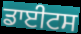
ਡਾਈਟਸ